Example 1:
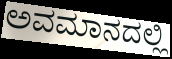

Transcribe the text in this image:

ಅವಮಾನದಲ್ಲಿ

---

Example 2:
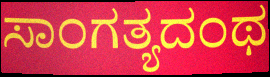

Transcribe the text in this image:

ಸಾಂಗತ್ಯದಂಥ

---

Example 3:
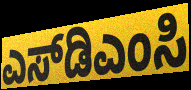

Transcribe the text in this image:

ಎಸ್‌ಡಿಎಂಸಿ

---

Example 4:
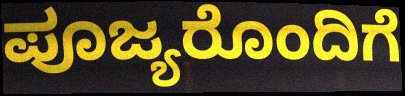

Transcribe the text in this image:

ಪೂಜ್ಯರೊಂದಿಗೆ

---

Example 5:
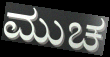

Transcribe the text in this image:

ಮುಚ